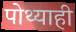
पोथ्याही